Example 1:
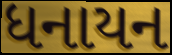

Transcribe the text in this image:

ધનાયન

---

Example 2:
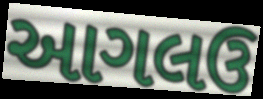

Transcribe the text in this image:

આગલઉ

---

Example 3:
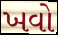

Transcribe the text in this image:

ખવો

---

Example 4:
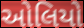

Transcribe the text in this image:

ઓલિયો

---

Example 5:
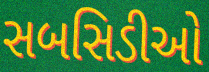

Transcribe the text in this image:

સબસિડીઓ